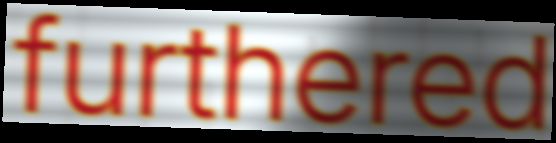
furthered